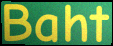
Baht